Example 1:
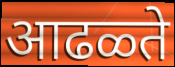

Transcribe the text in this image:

आढळ्ते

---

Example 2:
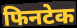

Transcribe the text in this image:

फिनटेक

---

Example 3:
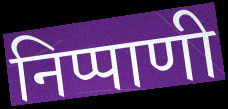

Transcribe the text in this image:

निप्पाणी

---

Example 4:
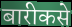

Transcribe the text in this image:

बारीकसे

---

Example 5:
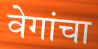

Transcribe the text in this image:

वेगांचा